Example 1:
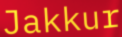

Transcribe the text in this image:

Jakkur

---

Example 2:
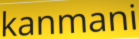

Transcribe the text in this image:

kanmani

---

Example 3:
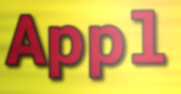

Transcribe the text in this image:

Appl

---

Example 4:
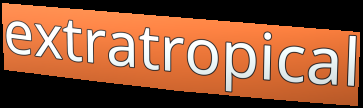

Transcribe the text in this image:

extratropical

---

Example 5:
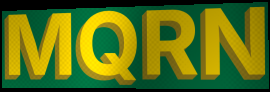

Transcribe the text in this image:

MQRN